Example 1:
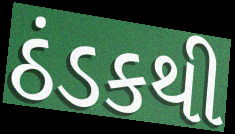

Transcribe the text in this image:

ઠંડકથી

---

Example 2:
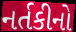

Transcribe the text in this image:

નર્તકીનો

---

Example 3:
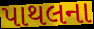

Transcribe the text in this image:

પાથલના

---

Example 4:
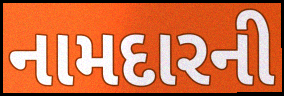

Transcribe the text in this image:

નામદારની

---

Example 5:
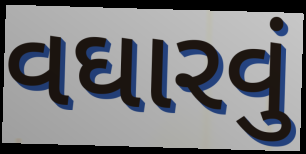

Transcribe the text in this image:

વઘારવું